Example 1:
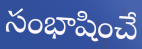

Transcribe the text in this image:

సంభాషించే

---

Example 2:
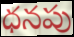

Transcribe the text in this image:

ధనపు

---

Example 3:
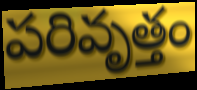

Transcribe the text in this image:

పరివృత్తం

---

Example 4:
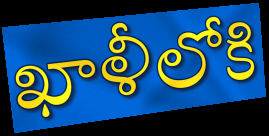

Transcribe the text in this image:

ఖాళీలోకి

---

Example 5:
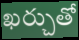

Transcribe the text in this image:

ఖర్చుతో